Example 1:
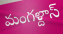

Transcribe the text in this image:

మంగళ్దాస్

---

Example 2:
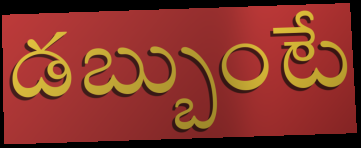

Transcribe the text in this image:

డబ్బుంటే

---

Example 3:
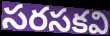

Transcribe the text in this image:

సరసకవి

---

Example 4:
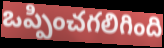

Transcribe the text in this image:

ఒప్పించగలిగింది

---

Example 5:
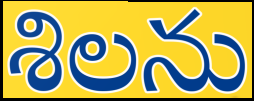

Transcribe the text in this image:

శిలను